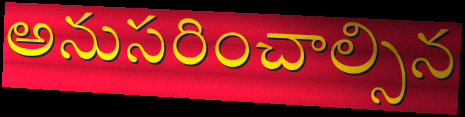
అనుసరించాల్సిన